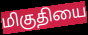
மிகுதியை